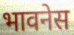
भावनेस